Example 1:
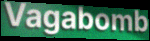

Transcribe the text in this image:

Vagabomb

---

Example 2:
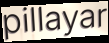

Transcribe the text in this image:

pillayar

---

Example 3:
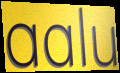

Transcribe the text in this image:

aalu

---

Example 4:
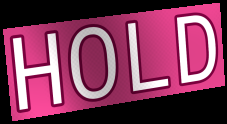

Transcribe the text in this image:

HOLD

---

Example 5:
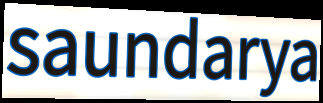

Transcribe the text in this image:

saundarya